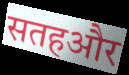
सतहऔर